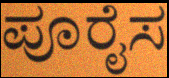
ಪೂರೈಸ